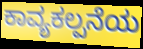
ಕಾವ್ಯಕಲ್ಪನೆಯ